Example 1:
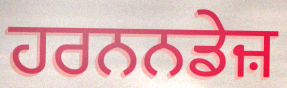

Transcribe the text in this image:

ਹਰਨਨਡੇਜ਼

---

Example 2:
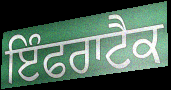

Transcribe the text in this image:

ਇੰਫਰਾਟੈਕ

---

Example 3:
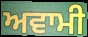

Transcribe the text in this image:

ਅਵਾਮੀ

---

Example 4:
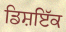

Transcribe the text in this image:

ਡਿਸ਼ਇੱਕ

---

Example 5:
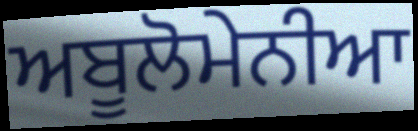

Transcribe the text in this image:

ਅਬੂਲੋਮੇਨੀਆ